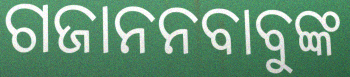
ଗଜାନନବାବୁଙ୍କ